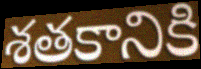
శతకానికి